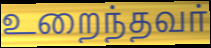
உறைந்தவர்